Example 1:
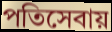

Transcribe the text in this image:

পতিসেবায়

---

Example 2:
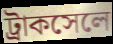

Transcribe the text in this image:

ট্রাকসেলে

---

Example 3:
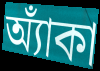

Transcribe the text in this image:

অ্যাঁকা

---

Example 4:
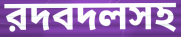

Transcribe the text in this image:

রদবদলসহ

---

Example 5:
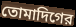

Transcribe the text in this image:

তোমাদিগের